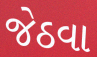
જેઠવા